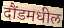
दौंडमधील